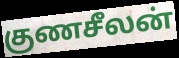
குணசீலன்